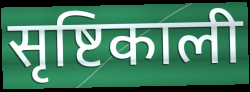
सृष्टिकाली